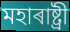
মহাৰাষ্ট্ৰী